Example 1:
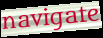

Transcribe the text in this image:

navigate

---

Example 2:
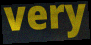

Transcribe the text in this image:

very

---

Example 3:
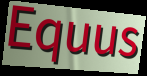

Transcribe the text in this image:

Equus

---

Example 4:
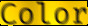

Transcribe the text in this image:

Color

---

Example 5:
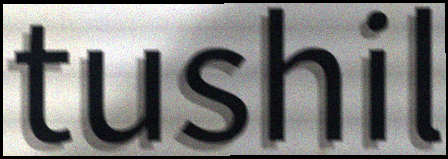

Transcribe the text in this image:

tushil